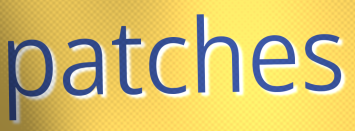
patches